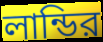
লান্ডির